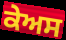
ਕੇਅਸ